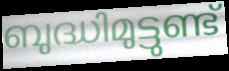
ബുദ്ധിമുട്ടുണ്ട്